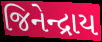
જિનેન્દ્રાય